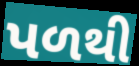
પળથી